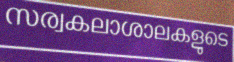
സര്വകലാശാലകളുടെ